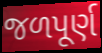
જળપૂર્ણ